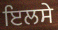
ਇਲਸੇ